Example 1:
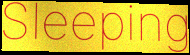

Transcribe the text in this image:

Sleeping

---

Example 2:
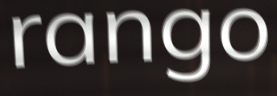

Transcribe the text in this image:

rango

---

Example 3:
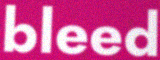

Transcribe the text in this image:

bleed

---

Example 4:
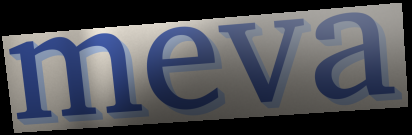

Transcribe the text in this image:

meva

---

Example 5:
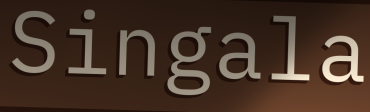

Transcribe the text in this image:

Singala